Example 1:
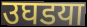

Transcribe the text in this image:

उघडया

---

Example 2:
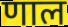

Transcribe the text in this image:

णाल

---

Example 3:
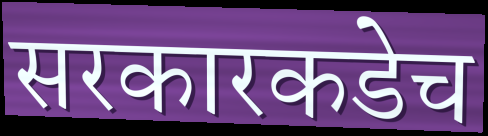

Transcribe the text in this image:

सरकारकडेच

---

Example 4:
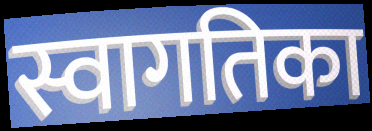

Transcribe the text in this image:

स्वागतिका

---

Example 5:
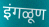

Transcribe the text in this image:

इंगळूण